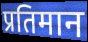
प्रतिमान